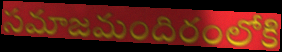
సమాజమందిరంలోకి